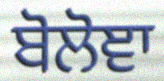
ਬੋਲੋਞਾ